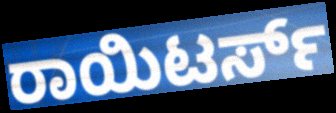
ರಾಯಿಟರ್ಸ್